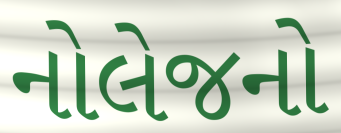
નોલેજનો